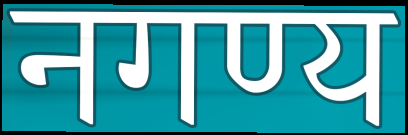
नगण्य